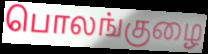
பொலங்குழை